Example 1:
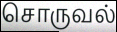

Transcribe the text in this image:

சொருவல்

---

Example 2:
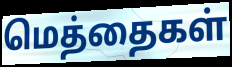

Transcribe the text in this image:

மெத்தைகள்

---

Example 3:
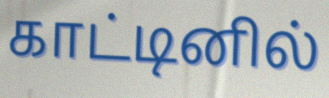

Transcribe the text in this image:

காட்டினில்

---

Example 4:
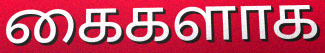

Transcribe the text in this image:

கைகளாக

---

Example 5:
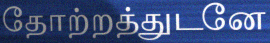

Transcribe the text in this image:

தோற்றத்துடனே